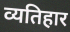
व्यतिहार